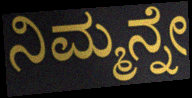
ನಿಮ್ಮನ್ನೇ